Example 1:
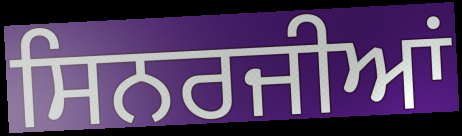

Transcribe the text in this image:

ਸਿਨਰਜੀਆਂ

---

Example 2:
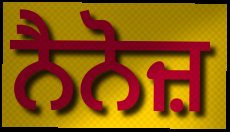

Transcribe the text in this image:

ਨੈਨੋਜ਼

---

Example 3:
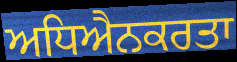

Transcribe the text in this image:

ਅਧਿਐਨਕਰਤਾ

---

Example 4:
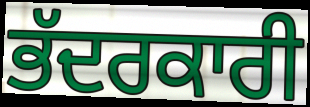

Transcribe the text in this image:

ਭੱਦਰਕਾਰੀ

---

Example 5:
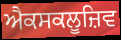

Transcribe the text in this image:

ਐਕਸਕਲੂਜ਼ਿਵ